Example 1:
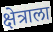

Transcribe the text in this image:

क्षेत्राला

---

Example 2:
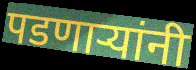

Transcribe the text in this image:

पडणाऱ्यांनी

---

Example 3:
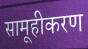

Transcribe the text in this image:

सामूहीकरण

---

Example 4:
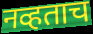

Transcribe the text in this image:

नव्हताच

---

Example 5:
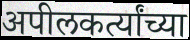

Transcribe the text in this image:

अपीलकर्त्यांच्या